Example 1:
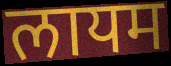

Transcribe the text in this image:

लायम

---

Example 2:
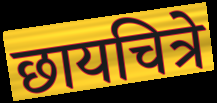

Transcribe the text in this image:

छायचित्रे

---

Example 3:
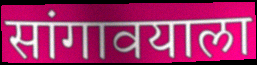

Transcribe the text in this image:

सांगावयाला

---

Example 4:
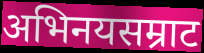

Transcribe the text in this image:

अभिनयसम्राट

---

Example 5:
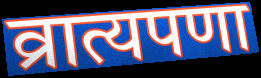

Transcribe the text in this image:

व्रात्यपणा